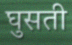
घुसती